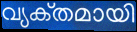
വ്യക്‌തമായി